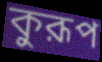
কুরূপ